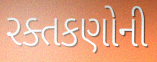
રક્તકણોની